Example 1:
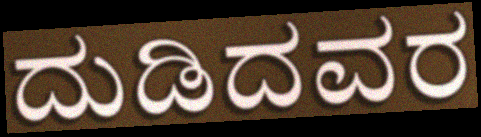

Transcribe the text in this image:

ದುಡಿದವರ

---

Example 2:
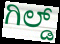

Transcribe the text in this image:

ಗಿಲ್ಡ್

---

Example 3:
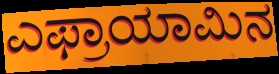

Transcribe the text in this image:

ಎಫ್ರಾಯಾಮಿನ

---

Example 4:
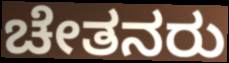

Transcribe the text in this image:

ಚೇತನರು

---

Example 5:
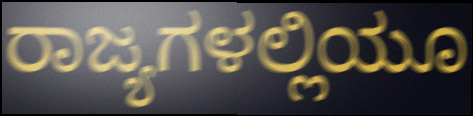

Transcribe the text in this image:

ರಾಜ್ಯಗಳಲ್ಲಿಯೂ